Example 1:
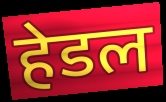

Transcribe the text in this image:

हेडल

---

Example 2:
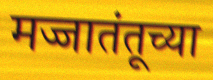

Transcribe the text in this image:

मज्जातंतूच्या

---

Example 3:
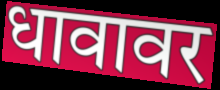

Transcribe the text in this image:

धावावर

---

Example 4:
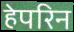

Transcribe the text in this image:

हेपरिन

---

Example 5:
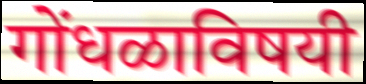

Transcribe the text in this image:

गोंधळाविषयी